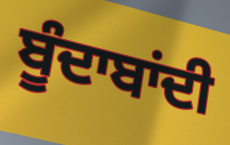
ਬੂੰਦਾਬਾਂਦੀ